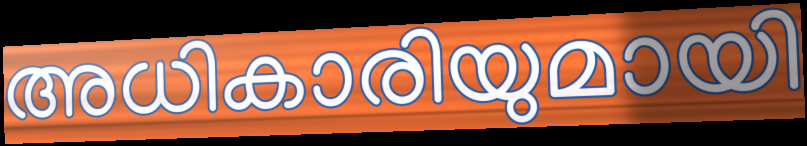
അധികാരിയുമായി